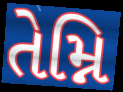
તેમ્નિ